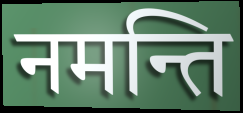
नमन्ति